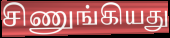
சிணுங்கியது